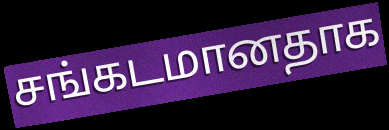
சங்கடமானதாக